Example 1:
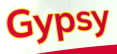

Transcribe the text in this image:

Gypsy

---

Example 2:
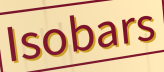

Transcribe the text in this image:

Isobars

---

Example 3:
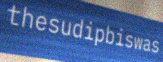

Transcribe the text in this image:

thesudipbiswas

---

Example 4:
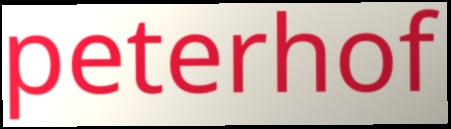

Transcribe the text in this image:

peterhof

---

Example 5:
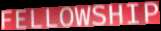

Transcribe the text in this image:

FELLOWSHIP